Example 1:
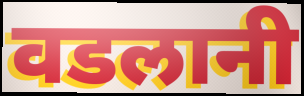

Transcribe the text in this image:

वडलानी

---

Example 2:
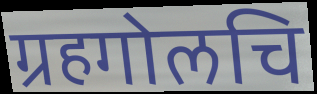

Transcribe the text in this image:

ग्रहगोलचि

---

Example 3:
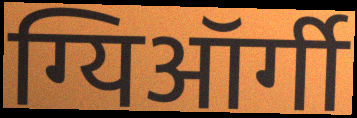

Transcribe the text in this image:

ग्यिऑर्गी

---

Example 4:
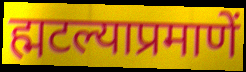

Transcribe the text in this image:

ह्मटल्याप्रमाणें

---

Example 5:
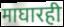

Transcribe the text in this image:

माघारही